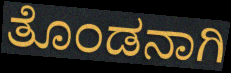
ತೊಂಡನಾಗಿ